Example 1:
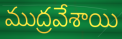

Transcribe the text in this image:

ముద్రవేశాయి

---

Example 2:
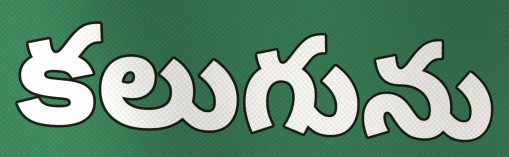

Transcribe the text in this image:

కలుగును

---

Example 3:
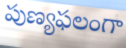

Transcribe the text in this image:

పుణ్యఫలంగా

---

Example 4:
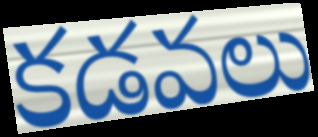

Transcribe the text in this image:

కడవలు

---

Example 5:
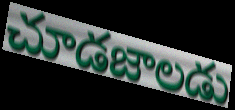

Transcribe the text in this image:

చూడజాలడు